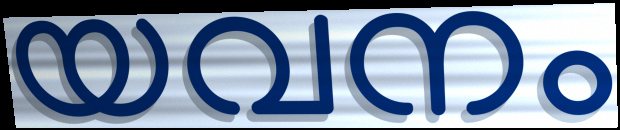
യവനം